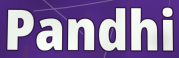
Pandhi